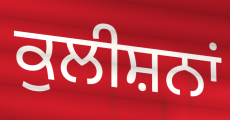
ਕੁਲੀਸ਼ਨਾਂ